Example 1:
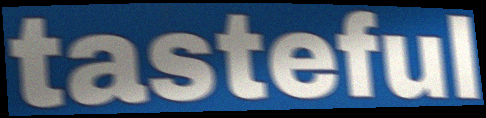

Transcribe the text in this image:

tasteful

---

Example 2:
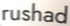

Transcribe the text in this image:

rushad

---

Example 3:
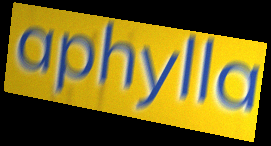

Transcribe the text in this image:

aphylla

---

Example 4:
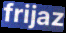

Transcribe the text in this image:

frijaz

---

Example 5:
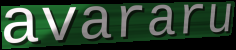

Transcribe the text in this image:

avararu